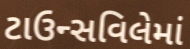
ટાઉન્સવિલેમાં